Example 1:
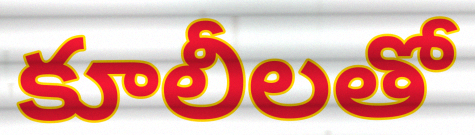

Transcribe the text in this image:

కూలీలతో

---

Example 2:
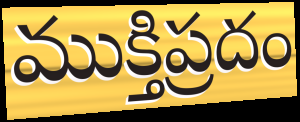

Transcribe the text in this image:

ముక్తిప్రదం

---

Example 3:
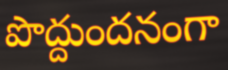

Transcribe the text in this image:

పొద్దుందనంగా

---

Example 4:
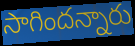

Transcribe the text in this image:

సాగిందన్నారు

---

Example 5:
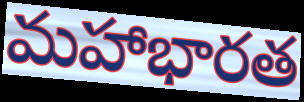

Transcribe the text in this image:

మహాభారత